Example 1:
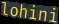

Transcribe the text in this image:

lohini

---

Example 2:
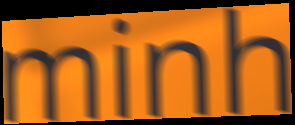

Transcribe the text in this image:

minh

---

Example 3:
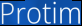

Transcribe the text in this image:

Protim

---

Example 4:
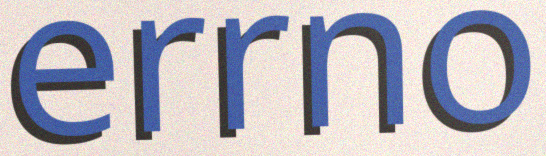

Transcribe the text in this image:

errno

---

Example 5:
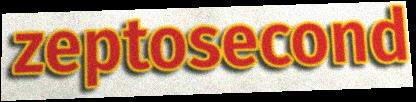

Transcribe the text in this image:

zeptosecond